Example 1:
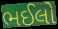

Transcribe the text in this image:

ભઈલો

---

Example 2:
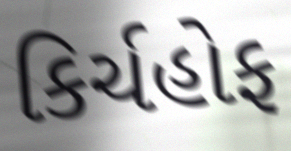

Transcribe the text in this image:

કિર્ચહોફ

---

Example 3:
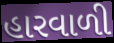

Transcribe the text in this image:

હારવાળી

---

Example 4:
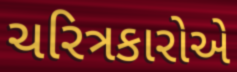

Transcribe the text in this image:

ચરિત્રકારોએ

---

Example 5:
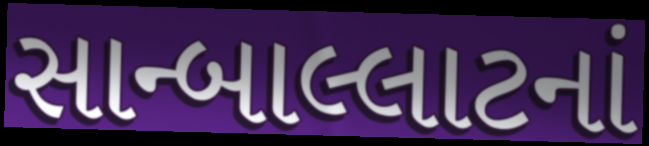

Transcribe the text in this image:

સાન્બાલ્લાટનાં